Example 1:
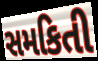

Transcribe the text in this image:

સમકિતી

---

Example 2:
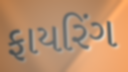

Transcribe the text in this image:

ફાયરિંગ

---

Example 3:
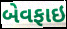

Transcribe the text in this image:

બેવફાઇ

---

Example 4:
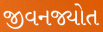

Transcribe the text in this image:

જીવનજ્યોત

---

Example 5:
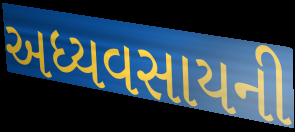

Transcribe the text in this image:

અધ્યવસાયની